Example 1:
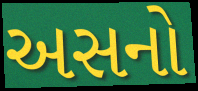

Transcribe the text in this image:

અસનો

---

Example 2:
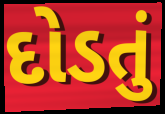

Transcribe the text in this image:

દોડતું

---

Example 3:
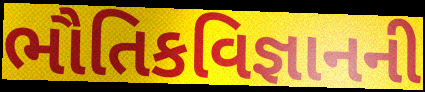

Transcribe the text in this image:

ભૌતિકવિજ્ઞાનની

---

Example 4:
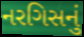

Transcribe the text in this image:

નરગિસનું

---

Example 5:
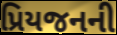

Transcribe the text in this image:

પ્રિયજનની